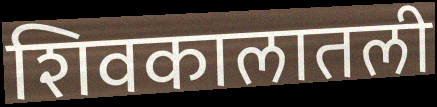
शिवकालातली